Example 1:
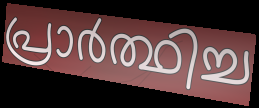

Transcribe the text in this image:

പ്രാർത്ഥിച്ച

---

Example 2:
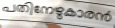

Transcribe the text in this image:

പതിനേഴുകാരൻ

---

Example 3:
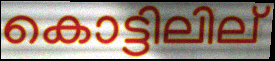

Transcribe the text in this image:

കൊട്ടിലില്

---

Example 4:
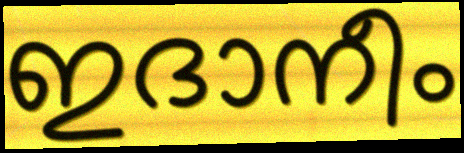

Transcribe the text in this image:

ഇദാനീം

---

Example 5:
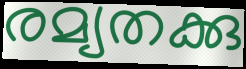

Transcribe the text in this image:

രമ്യതക്കു